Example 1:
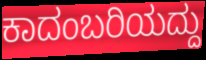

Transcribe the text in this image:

ಕಾದಂಬರಿಯದ್ದು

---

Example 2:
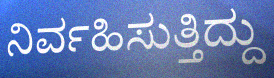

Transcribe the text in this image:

ನಿರ್ವಹಿಸುತ್ತಿದ್ದು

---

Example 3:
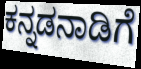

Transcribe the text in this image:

ಕನ್ನಡನಾಡಿಗೆ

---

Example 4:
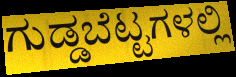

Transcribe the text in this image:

ಗುಡ್ಡಬೆಟ್ಟಗಳಲ್ಲಿ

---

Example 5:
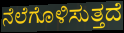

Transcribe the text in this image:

ನೆಲೆಗೊಳಿಸುತ್ತದೆ